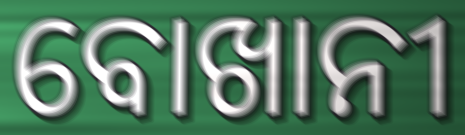
ବୋଖାନୀ